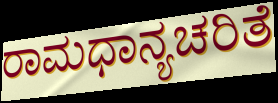
ರಾಮಧಾನ್ಯಚರಿತೆ